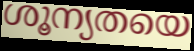
ശൂന്യതയെ